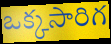
ఒక్కసారిగ